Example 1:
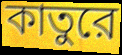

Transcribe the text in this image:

কাতুরে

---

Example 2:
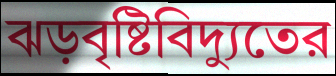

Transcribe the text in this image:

ঝড়বৃষ্টিবিদ্যুতের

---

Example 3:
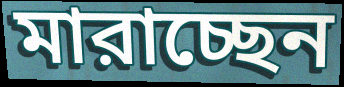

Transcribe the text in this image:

মারাচ্ছেন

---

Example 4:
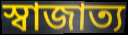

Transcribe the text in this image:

স্বাজাত্য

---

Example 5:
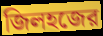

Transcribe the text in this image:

জিলহজের